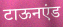
टाऊनएंड